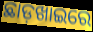
ଛାଡ଼ଖାଇରେ